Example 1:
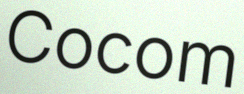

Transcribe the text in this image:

Cocom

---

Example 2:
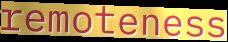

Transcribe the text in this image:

remoteness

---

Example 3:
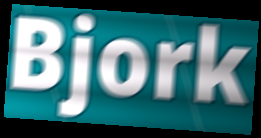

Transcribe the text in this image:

Bjork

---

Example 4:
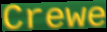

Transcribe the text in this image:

Crewe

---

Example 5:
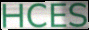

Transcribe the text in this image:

HCES